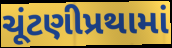
ચૂંટણીપ્રથામાં